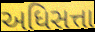
અધિસત્તા